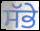
ਸੱਭੇ